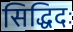
सिद्धिदः